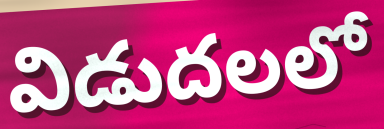
విడుదలలో